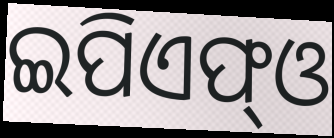
ଇପିଏଫ୍ଓ